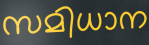
സമിധാന